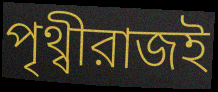
পৃথ্বীরাজই